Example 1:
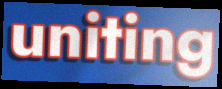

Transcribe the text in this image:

uniting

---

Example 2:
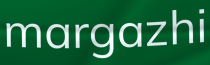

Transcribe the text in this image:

margazhi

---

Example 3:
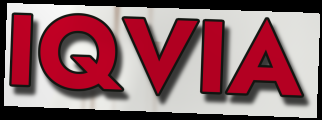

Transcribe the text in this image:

IQVIA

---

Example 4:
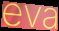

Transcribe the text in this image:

eva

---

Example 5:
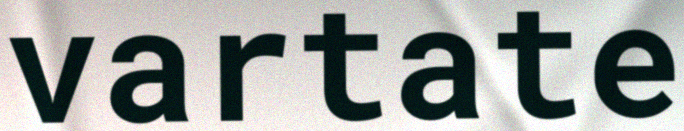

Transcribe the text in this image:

vartate